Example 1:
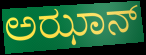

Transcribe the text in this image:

ಅಝಾನ್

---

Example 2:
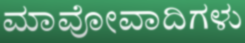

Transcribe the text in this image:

ಮಾವೋವಾದಿಗಳು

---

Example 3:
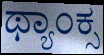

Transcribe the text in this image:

ಥ್ಯಾಂಕ್ಸ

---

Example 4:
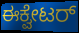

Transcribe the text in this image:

ಈಕ್ವೇಟರ್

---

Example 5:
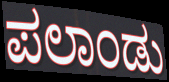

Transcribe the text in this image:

ಪಲಾಂಡು